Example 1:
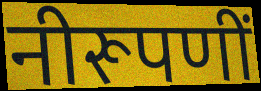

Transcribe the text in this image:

नीरूपणीं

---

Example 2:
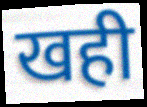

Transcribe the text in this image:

खही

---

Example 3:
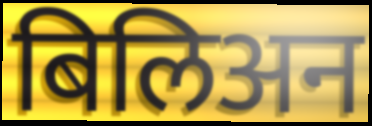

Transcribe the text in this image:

बिलिअन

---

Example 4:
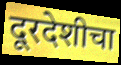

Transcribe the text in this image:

दूरदेशीचा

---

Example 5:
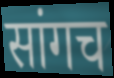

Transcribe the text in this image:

सांगच